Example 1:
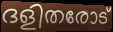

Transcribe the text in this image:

ദളിതരോട്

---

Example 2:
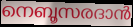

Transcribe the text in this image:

നെബൂസരദാൻ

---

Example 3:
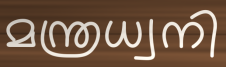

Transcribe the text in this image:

മന്ത്രധ്വനി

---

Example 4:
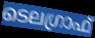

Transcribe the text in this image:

ടെലഗ്രാഫ്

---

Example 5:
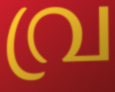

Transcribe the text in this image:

വ്ര